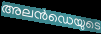
അലൻഡെയുടെ